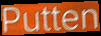
Putten